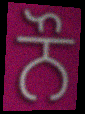
ਨੌ